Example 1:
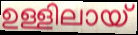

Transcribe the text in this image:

ഉള്ളിലായ്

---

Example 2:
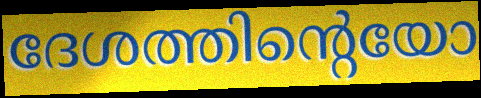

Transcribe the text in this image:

ദേശത്തിന്റെയോ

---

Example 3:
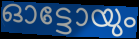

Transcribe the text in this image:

ഓട്ടോയും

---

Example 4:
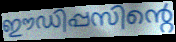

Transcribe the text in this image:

ഈഡിപ്പസിന്റെ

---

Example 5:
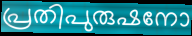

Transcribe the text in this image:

പ്രതിപുരുഷനോ